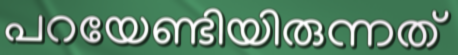
പറയേണ്ടിയിരുന്നത്